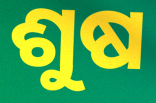
ଶୁଷ